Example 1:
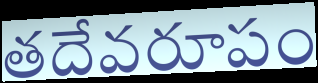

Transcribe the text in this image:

తదేవరూపం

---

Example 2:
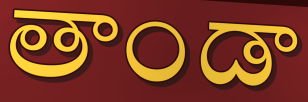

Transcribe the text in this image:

తాండా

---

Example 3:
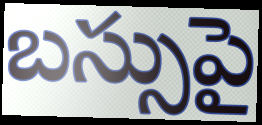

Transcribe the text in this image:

బస్సుపై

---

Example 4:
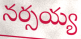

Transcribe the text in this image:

నర్సయ్య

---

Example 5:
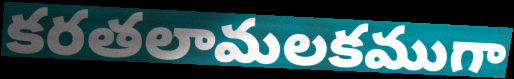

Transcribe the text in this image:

కరతలామలకముగా